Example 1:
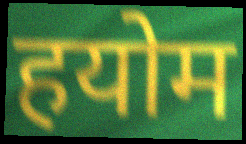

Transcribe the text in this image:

हयोम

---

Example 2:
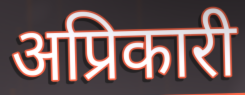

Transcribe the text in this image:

अप्रिकारी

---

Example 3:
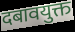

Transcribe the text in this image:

दबावयुक्त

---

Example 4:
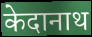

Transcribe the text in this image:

केदानाथ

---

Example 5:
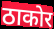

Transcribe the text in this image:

ठाकोर